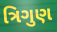
ત્રિગુણ